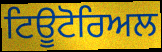
ਟਿਊਟੋਰਿਅਲ